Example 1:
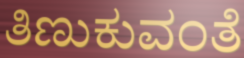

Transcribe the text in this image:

ತಿಣುಕುವಂತೆ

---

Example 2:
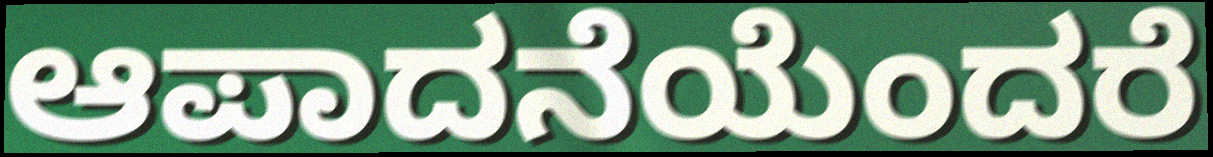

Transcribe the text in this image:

ಆಪಾದನೆಯೆಂದರೆ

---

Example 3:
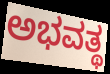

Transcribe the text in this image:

ಅಭವತ್ಥ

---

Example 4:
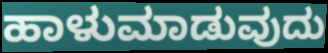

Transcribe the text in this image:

ಹಾಳುಮಾಡುವುದು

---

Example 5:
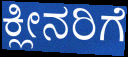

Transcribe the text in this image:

ಕ್ಲೀನರಿಗೆ